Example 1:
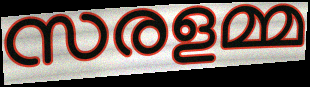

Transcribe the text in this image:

സരളമ്മ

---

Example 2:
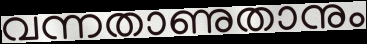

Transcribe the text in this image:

വന്നതാണുതാനും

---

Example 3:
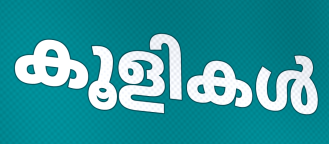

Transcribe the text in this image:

കൂളികൾ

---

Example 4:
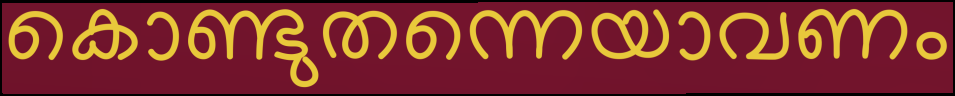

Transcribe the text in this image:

കൊണ്ടുതന്നെയാവണം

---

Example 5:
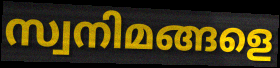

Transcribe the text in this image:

സ്വനിമങ്ങളെ